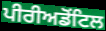
ਪੀਰੀਅਡੋਂਟਿਲ